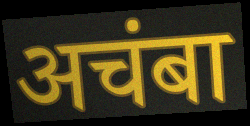
अचंबा